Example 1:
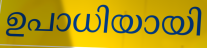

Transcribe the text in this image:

ഉപാധിയായി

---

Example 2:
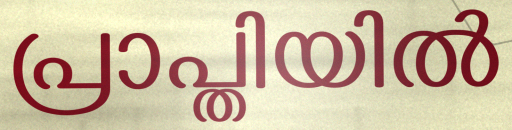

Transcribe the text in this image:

പ്രാപ്തിയിൽ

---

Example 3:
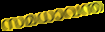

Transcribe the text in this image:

സമധാവന്ത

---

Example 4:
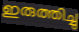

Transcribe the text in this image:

ഇരുത്തിച്ചു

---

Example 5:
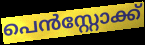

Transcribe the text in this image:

പെൻസ്റ്റോക്ക്